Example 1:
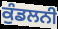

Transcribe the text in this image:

ਕੁੰਡਲਨੀ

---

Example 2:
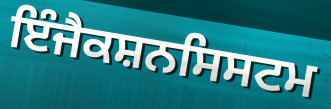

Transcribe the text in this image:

ਇੰਜੈਕਸ਼ਨਸਿਸਟਮ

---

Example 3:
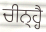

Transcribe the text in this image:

ਚੀਨ੍ਹ੍ਹੈ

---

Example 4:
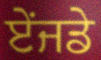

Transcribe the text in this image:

ਏਂਜਡੇ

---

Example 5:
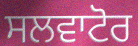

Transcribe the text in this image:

ਸਲਵਾਟੋਰ